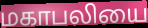
மகாபலியை